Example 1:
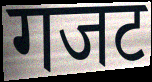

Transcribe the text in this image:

गजट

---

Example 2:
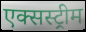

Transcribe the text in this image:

एक्सस्ट्रीम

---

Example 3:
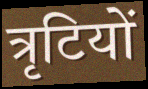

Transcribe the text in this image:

त्रृटियों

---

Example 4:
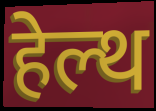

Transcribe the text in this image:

हेल्‍थ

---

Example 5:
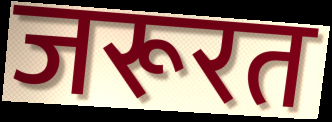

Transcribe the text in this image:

जरूरत